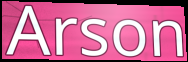
Arson